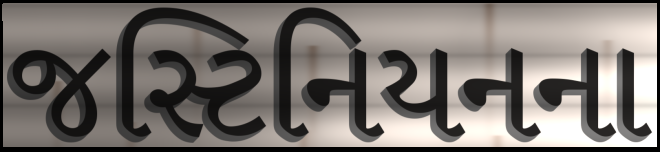
જસ્ટિનિયનના